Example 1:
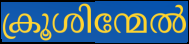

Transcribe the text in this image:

ക്രൂശിന്മേൽ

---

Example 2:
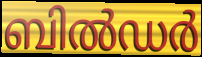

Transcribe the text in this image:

ബിൽഡർ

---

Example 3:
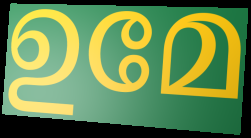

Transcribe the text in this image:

ഉമേ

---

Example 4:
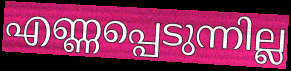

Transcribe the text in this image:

എണ്ണപ്പെടുന്നില്ല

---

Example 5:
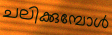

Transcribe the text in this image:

ചലിക്കുമ്പോൾ